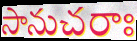
సానుచరాః